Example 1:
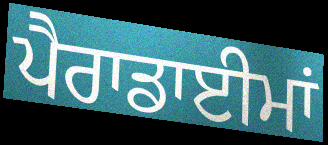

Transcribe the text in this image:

ਪੈਰਾਡਾਈਮਾਂ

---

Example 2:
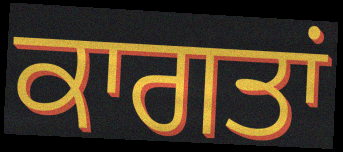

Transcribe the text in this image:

ਕਾਗਤਾਂ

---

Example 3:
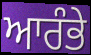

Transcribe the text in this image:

ਆਰੰਭੇ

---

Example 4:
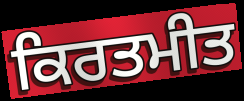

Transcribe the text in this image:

ਕਿਰਤਮੀਤ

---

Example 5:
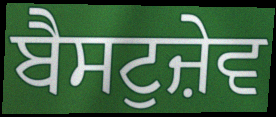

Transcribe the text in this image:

ਬੈਸਟੁਜ਼ੇਵ